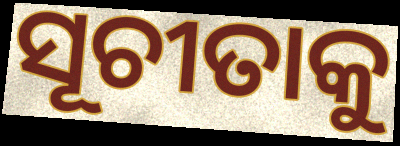
ସୂଚୀତାକୁ